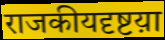
राजकीयदृष्टय़ा